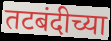
तटबंदीच्या